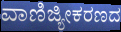
ವಾಣಿಜ್ಯೀಕರಣದ